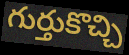
గుర్తుకొచ్చి